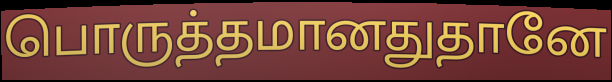
பொருத்தமானதுதானே